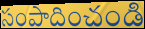
సంపాదించండి